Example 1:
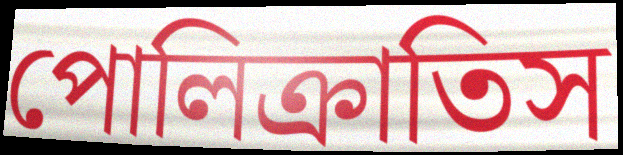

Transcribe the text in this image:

পোলিক্রাতিস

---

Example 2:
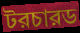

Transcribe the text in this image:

টরচারড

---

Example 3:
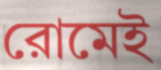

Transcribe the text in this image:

রোমেই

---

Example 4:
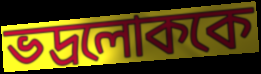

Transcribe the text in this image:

ভদ্রলোককে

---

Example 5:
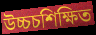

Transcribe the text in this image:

উচ্চচশিক্ষিত